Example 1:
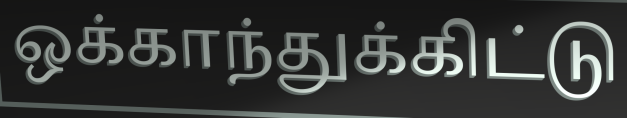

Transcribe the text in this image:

ஒக்காந்துக்கிட்டு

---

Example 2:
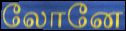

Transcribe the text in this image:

லோனே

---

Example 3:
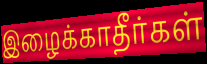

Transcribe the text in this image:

இழைக்காதீர்கள்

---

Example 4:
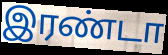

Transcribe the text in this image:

இரண்டா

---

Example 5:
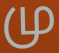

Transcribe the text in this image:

மு